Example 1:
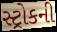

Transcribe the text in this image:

સ્ટ્રોકની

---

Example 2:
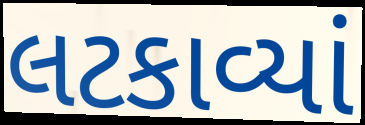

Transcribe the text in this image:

લટકાવ્યાં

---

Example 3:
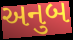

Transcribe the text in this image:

અનુબ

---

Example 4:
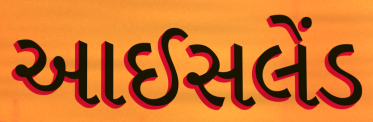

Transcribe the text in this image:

આઈસલેંડ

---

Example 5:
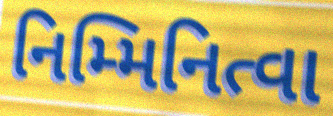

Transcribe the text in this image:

નિમ્મિનિત્વા